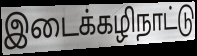
இடைக்கழிநாட்டு